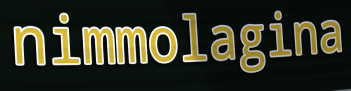
nimmolagina